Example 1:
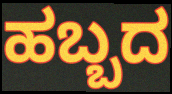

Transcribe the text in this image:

ಹಬ್ಬದ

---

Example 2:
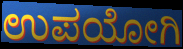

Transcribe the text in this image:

ಉಪಯೋಗಿ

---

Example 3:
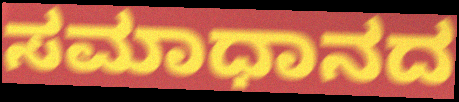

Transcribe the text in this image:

ಸಮಾಧಾನದ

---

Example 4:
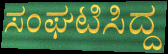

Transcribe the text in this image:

ಸಂಘಟಿಸಿದ್ದ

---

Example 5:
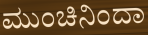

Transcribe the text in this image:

ಮುಂಚಿನಿಂದಾ